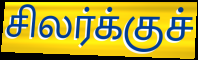
சிலர்க்குச்